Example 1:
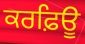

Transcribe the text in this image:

ਕਰਫ਼ਿਊ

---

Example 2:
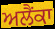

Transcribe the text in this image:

ਅਲੈਂਕਾ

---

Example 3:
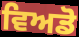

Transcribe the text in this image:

ਵਿਅਡੋ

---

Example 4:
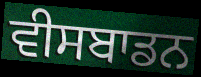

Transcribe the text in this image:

ਵੀਸਬਾਡਨ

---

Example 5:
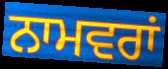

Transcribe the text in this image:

ਨਾਮਵਰਾਂ